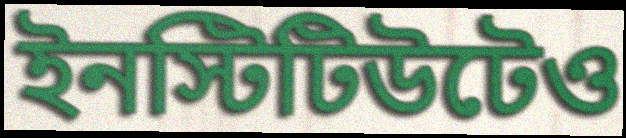
ইনস্টিটিউটেও